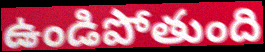
ఉండిపోతుంది